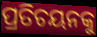
ପ୍ରତିଚୟନକୁ